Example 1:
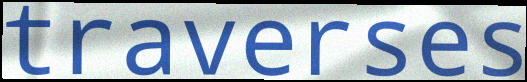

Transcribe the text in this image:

traverses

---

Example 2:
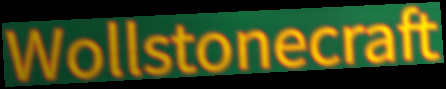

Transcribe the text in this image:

Wollstonecraft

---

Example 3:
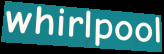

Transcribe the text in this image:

whirlpool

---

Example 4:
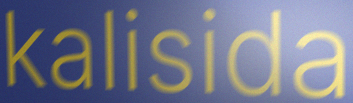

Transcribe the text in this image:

kalisida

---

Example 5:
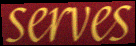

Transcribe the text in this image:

serves